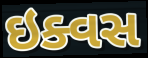
ઇક્વસ